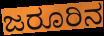
ಜರೂರಿನ